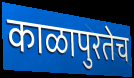
काळापुरतेच